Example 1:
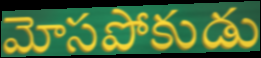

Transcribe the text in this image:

మోసపోకుడు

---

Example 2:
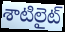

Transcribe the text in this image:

శాటిలైట్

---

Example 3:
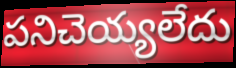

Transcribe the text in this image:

పనిచెయ్యలేదు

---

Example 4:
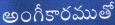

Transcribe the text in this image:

అంగీకారముతో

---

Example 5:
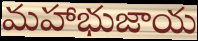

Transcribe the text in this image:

మహాభుజాయ